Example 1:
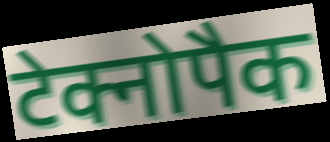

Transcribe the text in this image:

टेक्नोपैक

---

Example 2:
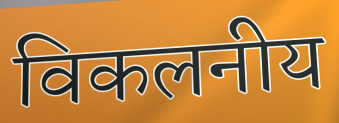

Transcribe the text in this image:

विकलनीय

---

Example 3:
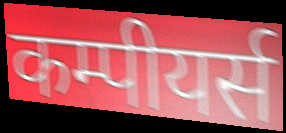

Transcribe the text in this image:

कम्पीयर्स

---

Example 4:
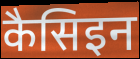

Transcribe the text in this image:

कैसिइन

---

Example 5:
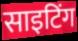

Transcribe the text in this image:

साइटिंग